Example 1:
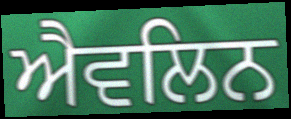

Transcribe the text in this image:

ਐਵਲਿਨ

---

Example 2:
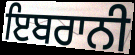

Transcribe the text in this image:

ਇਬਰਾਨੀ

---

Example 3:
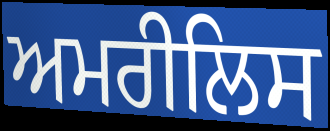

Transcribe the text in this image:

ਅਮਰੀਲਿਸ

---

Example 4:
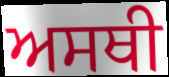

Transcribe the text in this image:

ਅਸਥੀ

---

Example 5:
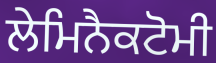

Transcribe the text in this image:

ਲੇਮਿਨੈਕਟੋਮੀ